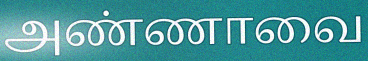
அண்ணாவை